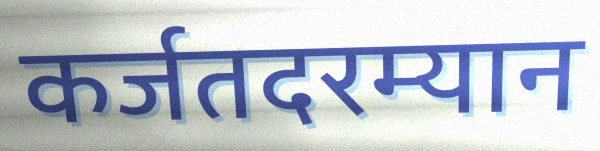
कर्जतदरम्यान